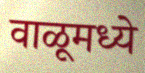
वाळूमध्ये